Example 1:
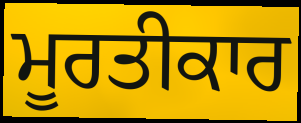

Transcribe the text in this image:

ਮੂਰਤੀਕਾਰ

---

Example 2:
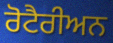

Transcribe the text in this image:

ਰੋਟੈਰੀਅਨ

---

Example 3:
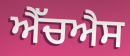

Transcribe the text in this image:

ਐੱਚਐਸ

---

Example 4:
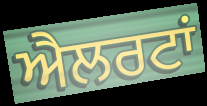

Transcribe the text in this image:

ਐਲਰਟਾਂ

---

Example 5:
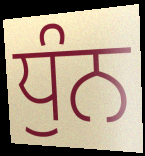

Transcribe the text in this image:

ਧੁੰਨ